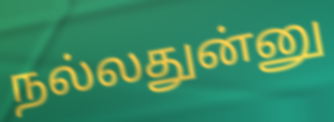
நல்லதுன்னு